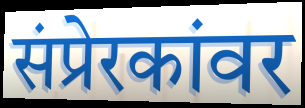
संप्रेरकांवर